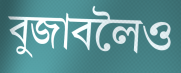
বুজাবলৈও